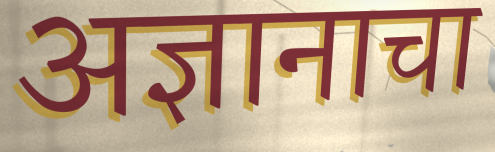
अज्ञानाचा